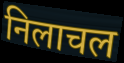
निलाचल